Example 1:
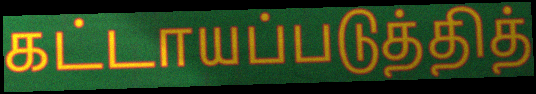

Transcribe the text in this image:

கட்டாயப்படுத்தித்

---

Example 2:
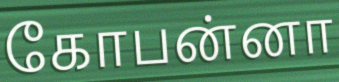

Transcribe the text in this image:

கோபன்னா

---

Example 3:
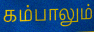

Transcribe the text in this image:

கம்பாலும்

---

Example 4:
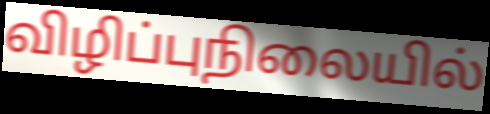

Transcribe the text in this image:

விழிப்புநிலையில்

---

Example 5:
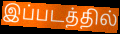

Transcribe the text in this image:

இப்படத்தில்